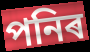
পনিৰ